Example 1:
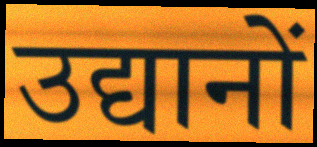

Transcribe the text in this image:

उद्यानों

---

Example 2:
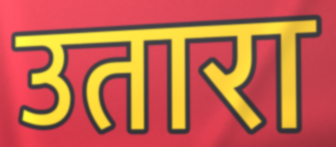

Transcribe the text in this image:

उतारा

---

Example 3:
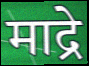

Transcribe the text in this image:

माद्रे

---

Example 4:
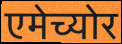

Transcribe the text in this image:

एमेच्योर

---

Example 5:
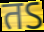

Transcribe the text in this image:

तऽ